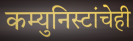
कम्युनिस्टांचेही